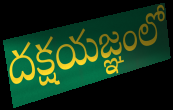
దక్షయజ్ఞంలో